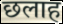
छलाह